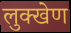
लुक्खेण